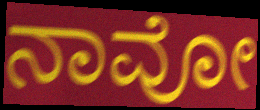
ನಾವೋ